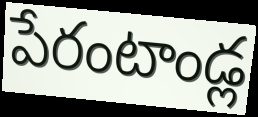
పేరంటాండ్ల